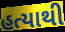
હત્યાથી